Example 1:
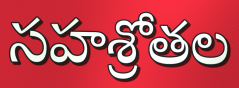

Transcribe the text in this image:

సహశ్రోతల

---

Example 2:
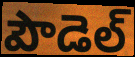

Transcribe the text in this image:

పౌడెల్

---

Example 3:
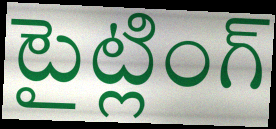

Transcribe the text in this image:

టైట్లింగ్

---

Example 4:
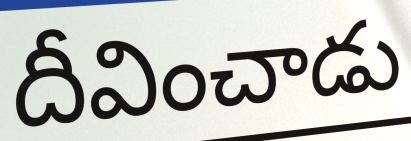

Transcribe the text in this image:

దీవించాడు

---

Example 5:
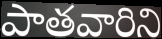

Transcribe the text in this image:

పాతవారిని